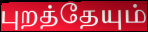
புறத்தேயும்